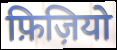
फ़िज़ियो